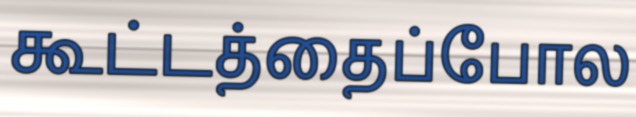
கூட்டத்தைப்போல